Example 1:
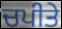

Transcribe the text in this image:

ਚਪੀਤੇ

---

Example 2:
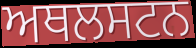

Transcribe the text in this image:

ਅਥਲਸਟਨ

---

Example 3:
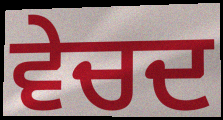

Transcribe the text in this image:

ਵੇਚਦ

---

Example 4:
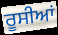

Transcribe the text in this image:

ਰੂਸੀਆਂ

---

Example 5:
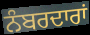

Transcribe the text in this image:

ਨੰਬਰਦਾਰਾਂ